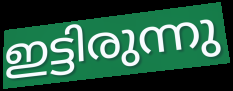
ഇട്ടിരുന്നു